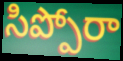
సిప్పోరా